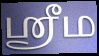
ஶ்ரீம